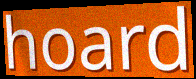
hoard